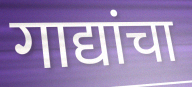
गाद्यांचा